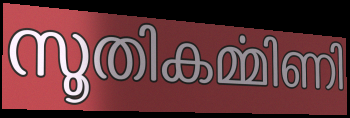
സൂതികൎമ്മിണി